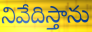
నివేదిస్తాను